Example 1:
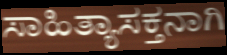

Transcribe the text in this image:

ಸಾಹಿತ್ಯಾಸಕ್ತನಾಗಿ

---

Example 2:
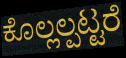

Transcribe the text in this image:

ಕೊಲ್ಲಲ್ಪಟ್ಟರೆ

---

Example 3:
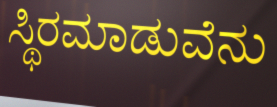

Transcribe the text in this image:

ಸ್ಥಿರಮಾಡುವೆನು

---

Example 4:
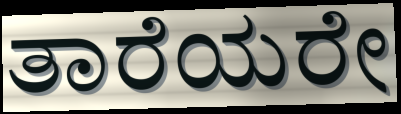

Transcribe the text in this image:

ತಾರೆಯರೇ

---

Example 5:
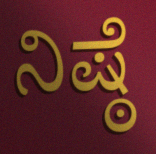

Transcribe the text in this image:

ನಿಷ್ಠೆ